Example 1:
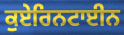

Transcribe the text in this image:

ਕੁਏਰਿਨਟਾਈਨ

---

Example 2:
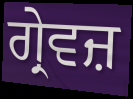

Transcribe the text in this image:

ਗ੍ਰੇਵਜ਼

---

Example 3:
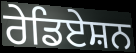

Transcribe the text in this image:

ਰੇਡਿਏਸ਼ਨ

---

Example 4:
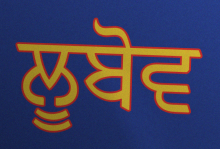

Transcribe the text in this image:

ਲੂਬੋਵ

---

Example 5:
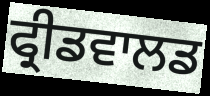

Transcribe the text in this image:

ਫ੍ਰੀਡਵਾਲਡ